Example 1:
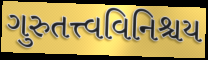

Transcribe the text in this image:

ગુરુતત્ત્વવિનિશ્ચય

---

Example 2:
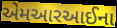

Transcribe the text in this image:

એમઆરઆઈના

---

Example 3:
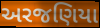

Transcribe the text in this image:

અરજણિયા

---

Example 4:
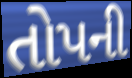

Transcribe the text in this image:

તોપની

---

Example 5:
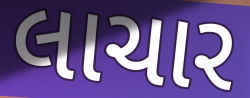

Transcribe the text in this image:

લાચાર